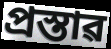
প্ৰস্তাৱ